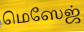
மெஸேஜ்